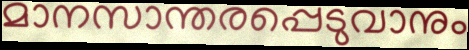
മാനസാന്തരപ്പെടുവാനും